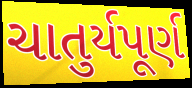
ચાતુર્યપૂર્ણ